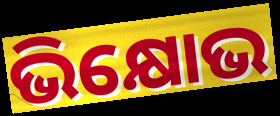
ଭିକ୍ଷୋଭ